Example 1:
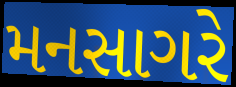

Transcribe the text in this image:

મનસાગરે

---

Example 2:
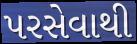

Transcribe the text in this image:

પરસેવાથી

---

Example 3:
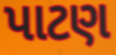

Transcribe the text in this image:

પાટણ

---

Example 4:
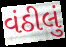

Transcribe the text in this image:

વંઠીલું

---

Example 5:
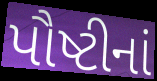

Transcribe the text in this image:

પૌષ્ટીનાં